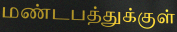
மண்டபத்துக்குள்